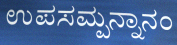
ಉಪಸಮ್ಪನ್ನಾನಂ